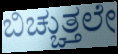
ಬಿಚ್ಚುತ್ತಲೇ